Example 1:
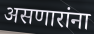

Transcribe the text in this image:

असणारांना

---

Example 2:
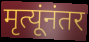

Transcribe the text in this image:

मृत्यूंनंतर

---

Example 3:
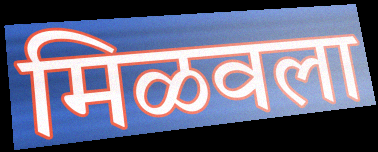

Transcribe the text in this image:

मिळवला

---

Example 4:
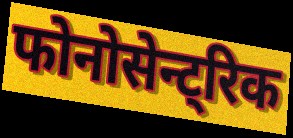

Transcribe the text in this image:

फोनोसेन्ट्रिक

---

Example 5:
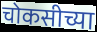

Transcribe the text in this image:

चोकसीच्या